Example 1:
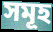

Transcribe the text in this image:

সমূহ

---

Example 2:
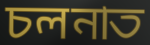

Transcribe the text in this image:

চলনাত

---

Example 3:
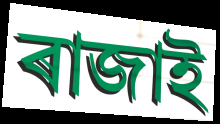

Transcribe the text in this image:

ৰাজাই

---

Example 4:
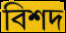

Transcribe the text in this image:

বিশদ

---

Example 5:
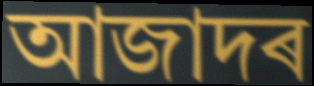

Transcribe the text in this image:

আজাদৰ